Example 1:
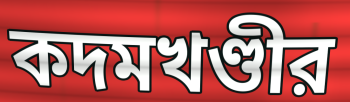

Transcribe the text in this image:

কদমখণ্ডীর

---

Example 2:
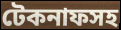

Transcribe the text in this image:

টেকনাফসহ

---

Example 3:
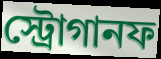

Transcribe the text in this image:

স্ট্রোগানফ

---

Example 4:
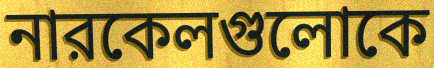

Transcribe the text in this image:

নারকেলগুলোকে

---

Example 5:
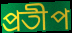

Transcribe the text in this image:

প্রতীপ